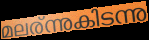
മലര്ന്നുകിടന്നു